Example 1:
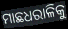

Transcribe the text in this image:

ମାଛଧରାଳିକୁ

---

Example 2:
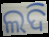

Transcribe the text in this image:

ଲଦି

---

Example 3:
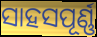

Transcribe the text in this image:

ସାହସପୂର୍ଣ୍ଣ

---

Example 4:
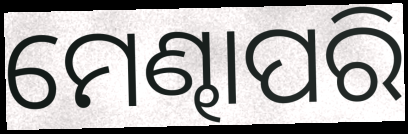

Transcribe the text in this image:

ମେଣ୍ଢାପରି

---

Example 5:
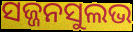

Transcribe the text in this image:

ସଜ୍ଜନସୁଲଭ